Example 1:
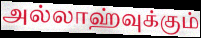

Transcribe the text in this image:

அல்லாஹ்வுக்கும்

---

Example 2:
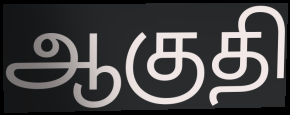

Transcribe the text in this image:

ஆகுதி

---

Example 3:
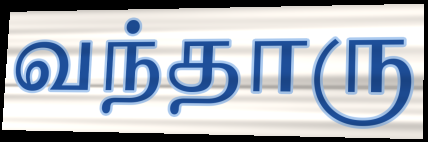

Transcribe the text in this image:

வந்தாரு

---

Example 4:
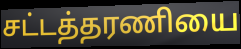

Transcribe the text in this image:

சட்டத்தரணியை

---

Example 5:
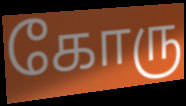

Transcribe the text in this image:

கோரு